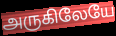
அருகிலேயே